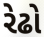
રેઢો